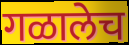
गळालेच